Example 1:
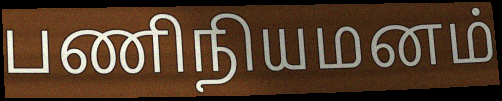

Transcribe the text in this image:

பணிநியமனம்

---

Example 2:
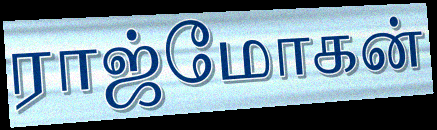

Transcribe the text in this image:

ராஜ்மோகன்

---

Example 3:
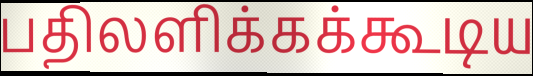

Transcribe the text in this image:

பதிலளிக்கக்கூடிய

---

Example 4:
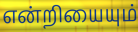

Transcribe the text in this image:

என்றியையும்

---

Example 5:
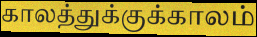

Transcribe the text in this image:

காலத்துக்குக்காலம்